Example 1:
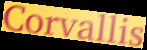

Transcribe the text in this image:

Corvallis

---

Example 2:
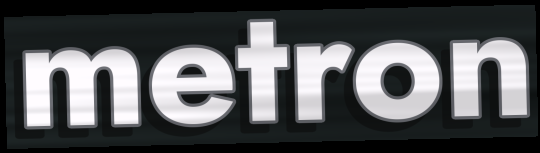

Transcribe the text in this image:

metron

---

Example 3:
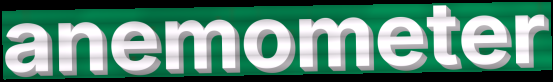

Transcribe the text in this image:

anemometer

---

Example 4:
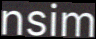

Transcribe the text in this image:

nsim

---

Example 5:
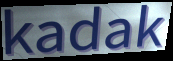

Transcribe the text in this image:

kadak